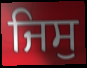
ਜਿਸੁ